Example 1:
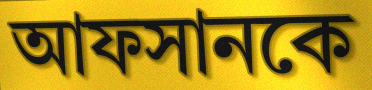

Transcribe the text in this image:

আফসানকে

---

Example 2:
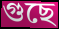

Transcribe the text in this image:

গুছে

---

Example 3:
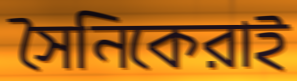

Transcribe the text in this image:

সৈনিকেরাই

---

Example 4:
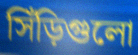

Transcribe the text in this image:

সিঁড়িগুলো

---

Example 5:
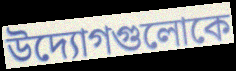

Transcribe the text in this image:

উদ্যোগগুলোকে